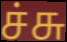
ச்சு